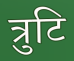
त्रुटि